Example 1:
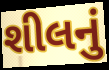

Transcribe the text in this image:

શીલનું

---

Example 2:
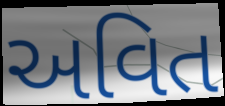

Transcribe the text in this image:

અવિત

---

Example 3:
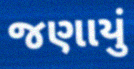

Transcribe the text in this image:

જણાયું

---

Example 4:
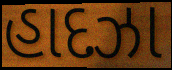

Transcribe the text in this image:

હાદઝા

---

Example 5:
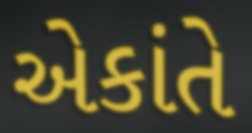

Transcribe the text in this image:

એકાંતે